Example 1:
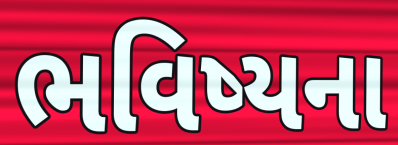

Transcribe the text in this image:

ભવિષ્યના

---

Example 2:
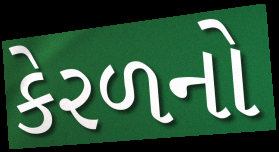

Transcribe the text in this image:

કેરળનો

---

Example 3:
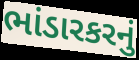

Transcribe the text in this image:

ભાંડારકરનું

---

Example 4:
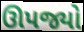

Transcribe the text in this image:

ઊપજ્યો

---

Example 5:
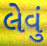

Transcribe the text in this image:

લેવું